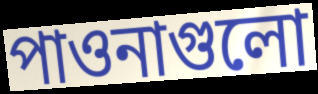
পাওনাগুলো